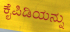
ಕೈಪಿಡಿಯನ್ನು